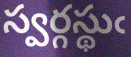
స్వర్గస్థుఁ